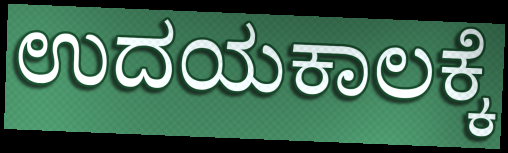
ಉದಯಕಾಲಕ್ಕೆ